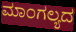
ಮಾಂಗಲ್ಯದ